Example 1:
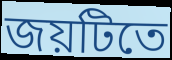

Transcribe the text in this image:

জয়টিতে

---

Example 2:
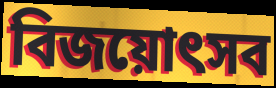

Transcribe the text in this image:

বিজয়োৎসব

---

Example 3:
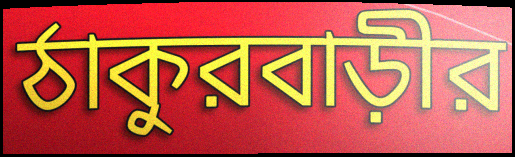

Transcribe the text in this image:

ঠাকুরবাড়ীর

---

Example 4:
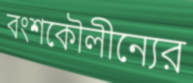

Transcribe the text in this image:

বংশকৌলীন্যের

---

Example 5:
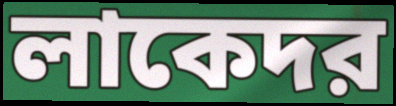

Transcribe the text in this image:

লাকেদর